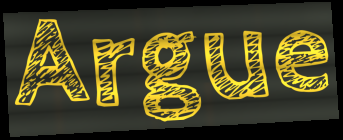
Argue